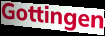
Gottingen